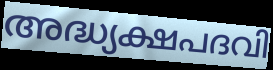
അദ്ധ്യക്ഷപദവി